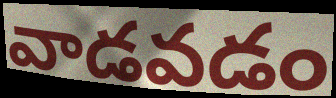
వాడవడం